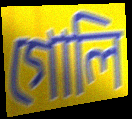
গোলি